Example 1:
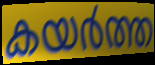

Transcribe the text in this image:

കയർത്ത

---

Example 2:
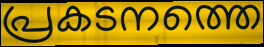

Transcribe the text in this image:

പ്രകടനത്തെ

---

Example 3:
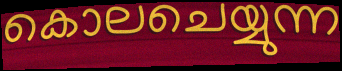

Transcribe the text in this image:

കൊലചെയ്യുന്ന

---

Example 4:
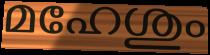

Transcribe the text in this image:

മഹേശും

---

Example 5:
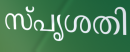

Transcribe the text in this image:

സ്പൃശതി